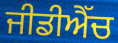
ਜੀਡੀਐੱਚ